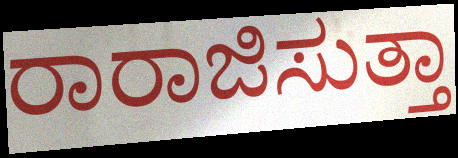
ರಾರಾಜಿಸುತ್ತಾ